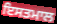
ਇਸਤਮਾਲ